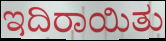
ಇದಿರಾಯಿತು